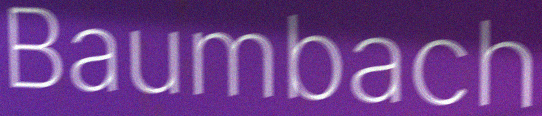
Baumbach